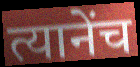
त्यानेंच